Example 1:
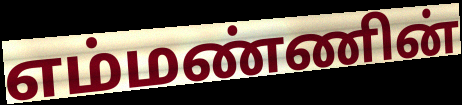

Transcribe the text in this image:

எம்மண்ணின்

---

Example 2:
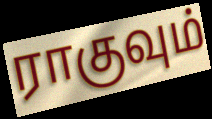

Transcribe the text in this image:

ராகுவும்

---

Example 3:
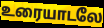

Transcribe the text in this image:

உரையாடலே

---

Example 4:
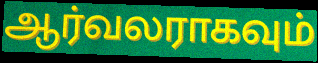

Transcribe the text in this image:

ஆர்வலராகவும்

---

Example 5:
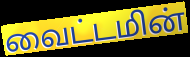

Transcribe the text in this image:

வைட்டமின்